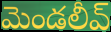
మెండలీవ్